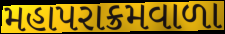
મહાપરાક્રમવાળા